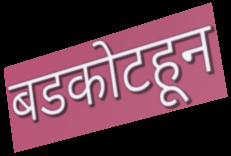
बडकोटहून